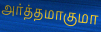
அர்த்தமாகுமா